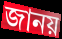
জানয়